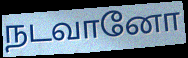
நடவானோ